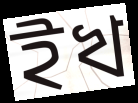
ইখ